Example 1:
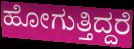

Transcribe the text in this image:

ಹೋಗುತ್ತಿದ್ದರೆ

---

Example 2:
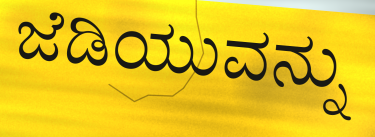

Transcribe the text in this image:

ಜೆಡಿಯುವನ್ನು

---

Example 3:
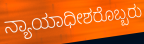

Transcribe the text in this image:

ನ್ಯಾಯಾಧೀಶರೊಬ್ಬರು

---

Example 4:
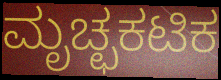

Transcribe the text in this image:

ಮೃಚ್ಛಕಟಿಕ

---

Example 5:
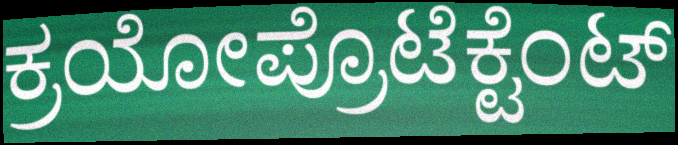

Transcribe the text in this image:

ಕ್ರಯೋಪ್ರೊಟೆಕ್ಟೆಂಟ್